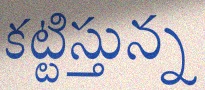
కట్టిస్తున్న